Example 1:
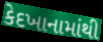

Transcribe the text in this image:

કેદખાનામાંથી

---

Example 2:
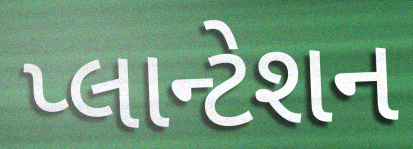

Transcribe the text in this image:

પ્લાન્ટેશન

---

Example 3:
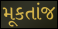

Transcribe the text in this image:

મૂકતાંજ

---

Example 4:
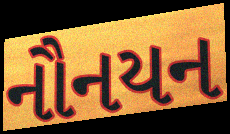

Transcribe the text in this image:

નૌનયન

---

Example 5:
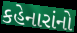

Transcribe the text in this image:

કહેનારાંનો